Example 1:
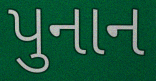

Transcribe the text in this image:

પુનાન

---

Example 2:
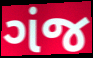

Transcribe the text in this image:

ગંજ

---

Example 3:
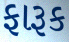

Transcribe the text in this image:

ફારૂક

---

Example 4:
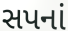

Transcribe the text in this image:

સપનાં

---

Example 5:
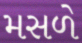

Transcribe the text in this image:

મસળે